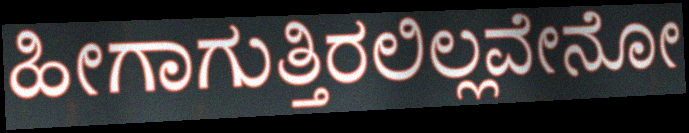
ಹೀಗಾಗುತ್ತಿರಲಿಲ್ಲವೇನೋ